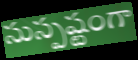
సుస్పష్టంగా